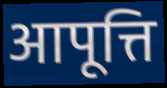
आपूत्ति